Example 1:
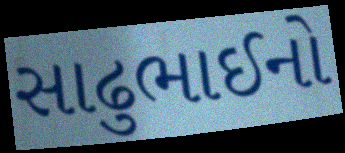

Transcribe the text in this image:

સાઢુભાઈનો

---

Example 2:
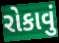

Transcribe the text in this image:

રોકાવું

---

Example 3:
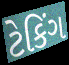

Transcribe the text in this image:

ટેકિંગ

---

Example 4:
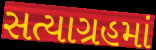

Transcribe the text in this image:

સત્યાગ્રહમાં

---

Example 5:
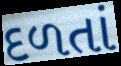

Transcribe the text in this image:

દળતાં